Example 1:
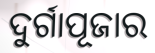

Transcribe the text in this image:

ଦୁର୍ଗାପୂଜାର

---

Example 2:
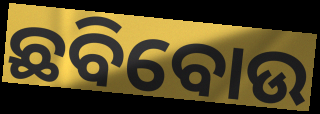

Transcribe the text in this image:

ଛବିବୋଉ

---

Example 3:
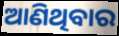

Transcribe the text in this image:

ଆଣିଥିବାର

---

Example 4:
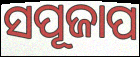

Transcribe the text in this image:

ସପୂଜାପ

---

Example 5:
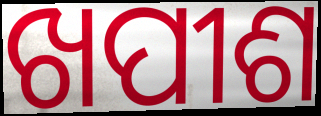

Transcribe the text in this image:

ଖପୀଶ